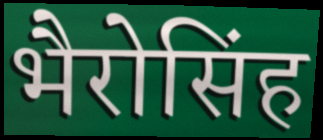
भैरोसिंह